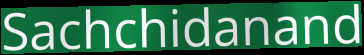
Sachchidanand